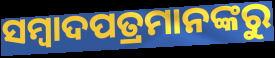
ସମ୍ୱାଦପତ୍ରମାନଙ୍କରୁ